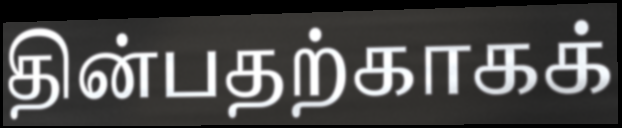
தின்பதற்காகக்